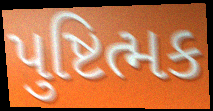
પુષ્ટિત્મક